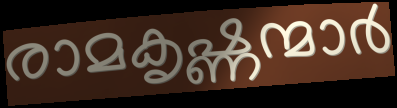
രാമകൃഷ്ണന്മാർ